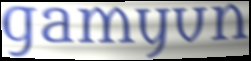
gamyun